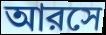
আরসে